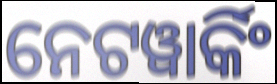
ନେଟୱାର୍କିଂ